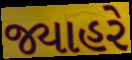
જ્યાહરે